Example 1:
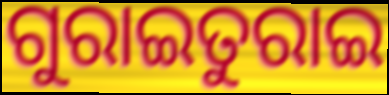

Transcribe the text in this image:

ଗୁରାଇତୁରାଇ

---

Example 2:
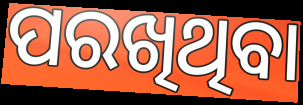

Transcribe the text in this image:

ପରଖିଥିବା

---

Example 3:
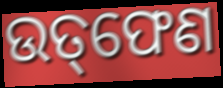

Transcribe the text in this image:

ଉତ୍‌ଫେଣ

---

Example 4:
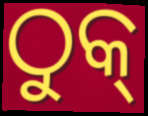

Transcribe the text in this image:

ଠୁକ୍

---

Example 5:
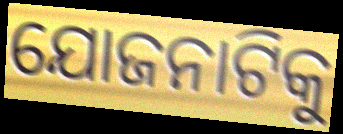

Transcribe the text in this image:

ଯୋଜନାଟିକୁ